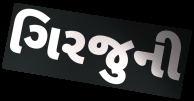
ગિરજુની